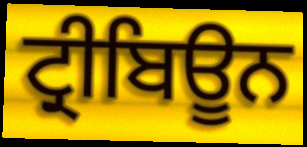
ਟ੍ਰੀਬਿਊਨ